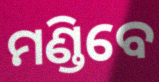
ମଣ୍ଡିବେ